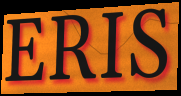
ERIS